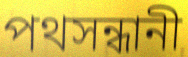
পথসন্ধানী